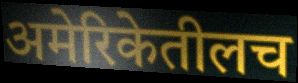
अमेरिकेतीलच